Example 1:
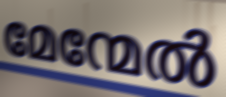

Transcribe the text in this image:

മേന്മേൽ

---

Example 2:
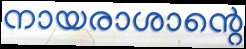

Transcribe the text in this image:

നായരാശാന്റെ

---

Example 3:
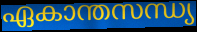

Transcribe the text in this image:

ഏകാന്തസന്ധ്യ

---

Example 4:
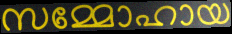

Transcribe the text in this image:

സമ്മോഹായ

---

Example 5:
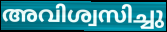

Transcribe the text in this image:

അവിശ്വസിച്ചു